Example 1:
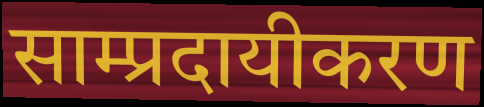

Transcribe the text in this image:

साम्प्रदायीकरण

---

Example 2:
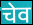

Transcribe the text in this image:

चेव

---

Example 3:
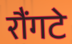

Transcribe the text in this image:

रौंगटे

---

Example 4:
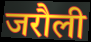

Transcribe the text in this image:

जरौली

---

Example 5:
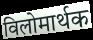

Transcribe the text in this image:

विलोमार्थक